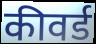
कीवर्ड